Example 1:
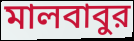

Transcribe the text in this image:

মালবাবুর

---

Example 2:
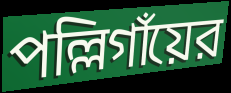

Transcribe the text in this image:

পল্লিগাঁয়ের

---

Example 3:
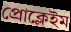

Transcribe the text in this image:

প্রোক্লেইম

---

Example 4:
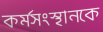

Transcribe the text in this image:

কর্মসংস্থানকে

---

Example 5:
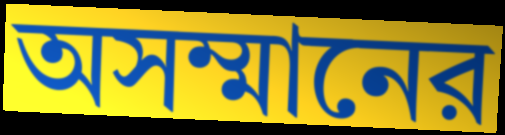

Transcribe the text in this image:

অসম্মানের